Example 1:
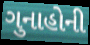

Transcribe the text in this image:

ગુનાહોની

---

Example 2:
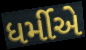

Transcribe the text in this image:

ધર્મીએ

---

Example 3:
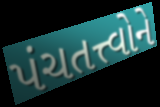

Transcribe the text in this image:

પંચતત્ત્વોને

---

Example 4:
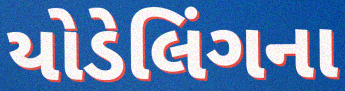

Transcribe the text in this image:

યોડેલિંગના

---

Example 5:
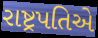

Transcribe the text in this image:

રાષ્ટ્રપતિએ